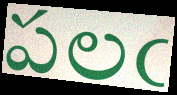
పలఁ